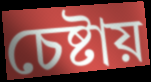
চেষ্টায়